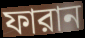
ফারান